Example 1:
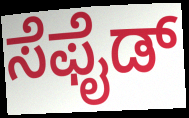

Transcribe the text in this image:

ಸೆಫೈಡ್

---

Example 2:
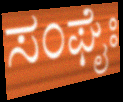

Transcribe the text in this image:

ಸಂಘೈಃ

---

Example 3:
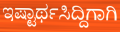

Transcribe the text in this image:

ಇಷ್ಟಾರ್ಥಸಿದ್ದಿಗಾಗಿ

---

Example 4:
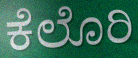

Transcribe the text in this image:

ಕೆಲೊರಿ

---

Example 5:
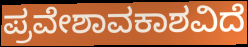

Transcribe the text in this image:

ಪ್ರವೇಶಾವಕಾಶವಿದೆ